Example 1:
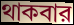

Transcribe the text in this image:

থাকবার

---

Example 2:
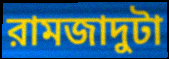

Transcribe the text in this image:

রামজাদুটা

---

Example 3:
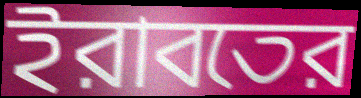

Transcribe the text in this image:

ইরাবতের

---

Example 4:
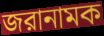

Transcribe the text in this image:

জরানামক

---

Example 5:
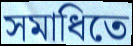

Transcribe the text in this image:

সমাধিতে